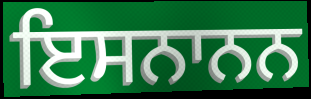
ਇਸਨਾਨਨ